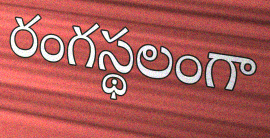
రంగస్థలంగా